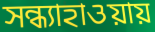
সন্ধ্যাহাওয়ায়